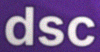
dsc